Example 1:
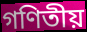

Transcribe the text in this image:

গণিতীয়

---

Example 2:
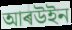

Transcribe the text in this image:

আৰউইন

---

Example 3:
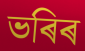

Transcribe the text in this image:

ভৰিৰ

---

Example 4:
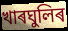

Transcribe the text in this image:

খাৰঘুলিৰ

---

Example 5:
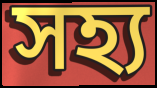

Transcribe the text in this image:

সহ্য